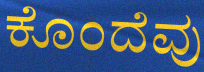
ಕೊಂದೆವು